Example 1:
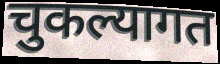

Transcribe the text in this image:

चुकल्यागत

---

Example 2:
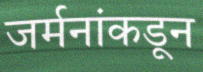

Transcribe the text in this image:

जर्मनांकडून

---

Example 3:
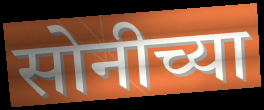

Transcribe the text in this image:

सोनीच्या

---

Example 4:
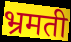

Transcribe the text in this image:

भ्रमती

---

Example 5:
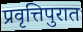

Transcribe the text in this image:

प्रवृत्तिपुरात